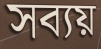
সব্যয়